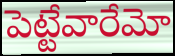
పెట్టేవారేమో